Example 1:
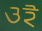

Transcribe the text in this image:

ওই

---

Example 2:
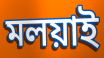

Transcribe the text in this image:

মলয়াই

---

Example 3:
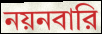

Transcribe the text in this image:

নয়নবারি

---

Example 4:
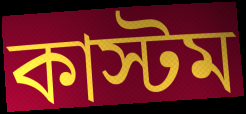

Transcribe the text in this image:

কাস্টম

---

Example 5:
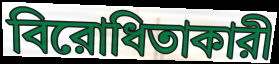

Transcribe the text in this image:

বিরোধিতাকারী